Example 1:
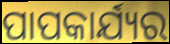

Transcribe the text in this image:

ପାପକାର୍ଯ୍ୟର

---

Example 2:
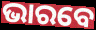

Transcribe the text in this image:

ଭାରବେ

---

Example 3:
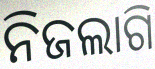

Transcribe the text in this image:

ନିଜଲାଗି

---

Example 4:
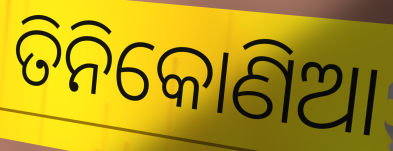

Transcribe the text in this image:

ତିନିକୋଣିଆ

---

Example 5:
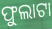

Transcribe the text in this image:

ଫୁଲାଟା